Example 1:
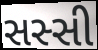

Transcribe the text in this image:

સસ્સી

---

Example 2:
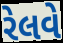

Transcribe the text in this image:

રેલવે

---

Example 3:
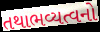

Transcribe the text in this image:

તથાભવ્યત્વનો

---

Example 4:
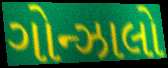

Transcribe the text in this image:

ગોન્ઝાલો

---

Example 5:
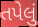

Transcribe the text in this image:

તપેલું